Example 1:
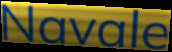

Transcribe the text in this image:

Navale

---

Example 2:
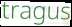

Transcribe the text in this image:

tragus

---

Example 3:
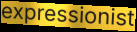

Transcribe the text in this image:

expressionist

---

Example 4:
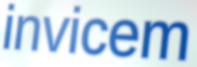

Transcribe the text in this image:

invicem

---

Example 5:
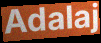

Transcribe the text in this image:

Adalaj